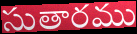
సుతారము